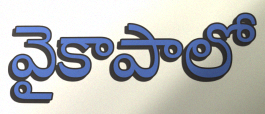
వైకాపాలో